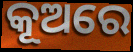
କୂଅରେ